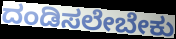
ದಂಡಿಸಲೇಬೇಕು